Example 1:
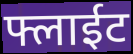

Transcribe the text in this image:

फ्लाईट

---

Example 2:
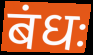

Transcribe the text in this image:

बंधः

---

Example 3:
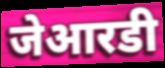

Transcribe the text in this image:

जेआरडी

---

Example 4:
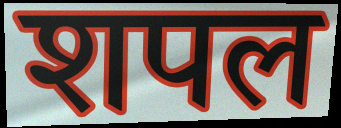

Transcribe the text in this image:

शपल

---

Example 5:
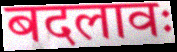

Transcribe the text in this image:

बदलावः